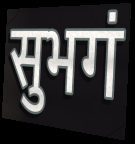
सुभगं